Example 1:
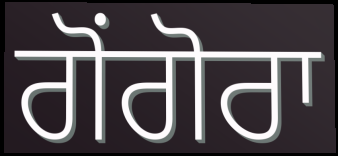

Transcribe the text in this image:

ਗੋਂਗੋਰਾ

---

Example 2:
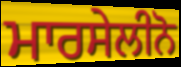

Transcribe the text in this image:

ਮਾਰਸੇਲੀਨੋ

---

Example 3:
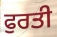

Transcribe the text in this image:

ਫੁਰਤੀ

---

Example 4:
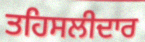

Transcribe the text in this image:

ਤਹਿਸਲੀਦਾਰ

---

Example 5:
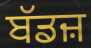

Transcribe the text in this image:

ਬੱਡਜ਼